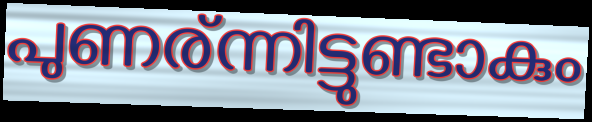
പുണര്ന്നിട്ടുണ്ടാകും